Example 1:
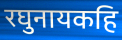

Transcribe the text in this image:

रघुनायकहि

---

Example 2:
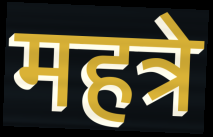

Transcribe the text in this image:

महत्रे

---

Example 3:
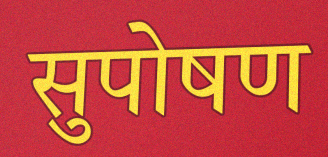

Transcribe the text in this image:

सुपोषण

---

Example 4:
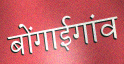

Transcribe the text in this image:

बोंगाईगांव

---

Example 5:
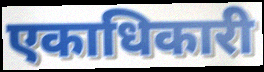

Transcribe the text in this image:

एकाधिकारी